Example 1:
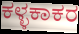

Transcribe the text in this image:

ಕಳ್ಳಕಾಕರ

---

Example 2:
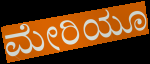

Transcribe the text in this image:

ಮೇರಿಯೂ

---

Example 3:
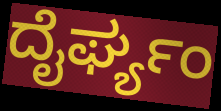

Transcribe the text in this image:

ದೈರ್ಘ್ಯಂ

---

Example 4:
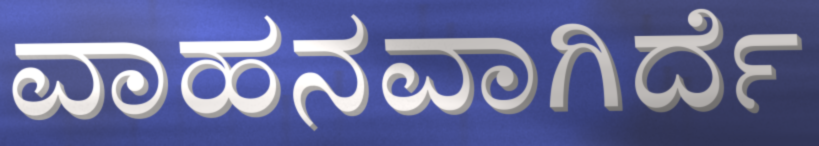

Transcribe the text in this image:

ವಾಹನವಾಗಿರ್ದೆ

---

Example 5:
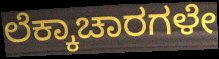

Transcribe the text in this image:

ಲೆಕ್ಕಾಚಾರಗಳೇ